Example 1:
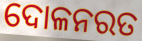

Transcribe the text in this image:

ଦୋଳନରତ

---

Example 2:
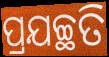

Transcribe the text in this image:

ପ୍ରଯଚ୍ଛତି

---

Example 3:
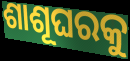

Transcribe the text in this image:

ଶାଶୂଘରକୁ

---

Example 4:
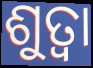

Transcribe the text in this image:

ଶୁତ୍ବା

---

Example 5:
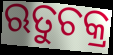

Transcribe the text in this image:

ଋତୁଚକ୍ର